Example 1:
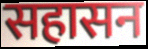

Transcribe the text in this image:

सहासन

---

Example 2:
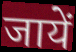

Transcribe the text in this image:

जायें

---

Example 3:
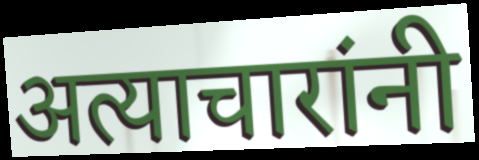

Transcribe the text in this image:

अत्याचारांनी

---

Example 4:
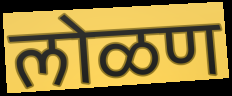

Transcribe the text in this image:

लोळण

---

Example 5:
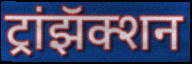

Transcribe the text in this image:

ट्रांझॅक्शन